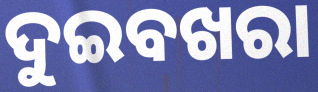
ଦୁଇବଖରା